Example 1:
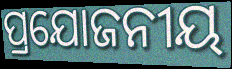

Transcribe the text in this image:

ପ୍ରଯୋଜନୀୟ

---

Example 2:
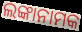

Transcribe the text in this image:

ଲଙ୍କାନାମକ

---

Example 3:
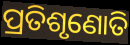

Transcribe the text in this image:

ପ୍ରତିଶୃଣୋତି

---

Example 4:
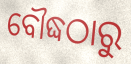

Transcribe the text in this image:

ବୌଦ୍ଧଠାରୁ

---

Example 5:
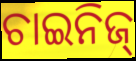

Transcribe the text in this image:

ଚାଇନିଜ୍